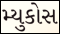
મ્યુકોસ